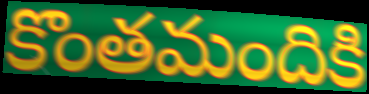
కొంతమందికి